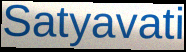
Satyavati